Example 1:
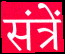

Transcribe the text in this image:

संत्रें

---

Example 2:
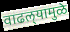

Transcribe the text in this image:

वाढल्यामुळे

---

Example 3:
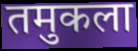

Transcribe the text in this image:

तमुकला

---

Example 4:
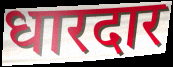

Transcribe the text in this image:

धारदार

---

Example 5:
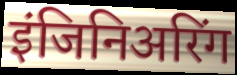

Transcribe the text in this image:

इंजिनिअरिंग